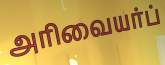
அரிவையர்ப்